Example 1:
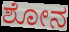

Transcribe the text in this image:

ಶೋನ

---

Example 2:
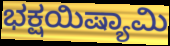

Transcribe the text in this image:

ಭಕ್ಷಯಿಷ್ಯಾಮಿ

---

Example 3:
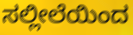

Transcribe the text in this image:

ಸಲ್ಲೀಲೆಯಿಂದ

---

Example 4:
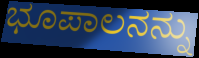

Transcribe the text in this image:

ಭೂಪಾಲನನ್ನು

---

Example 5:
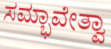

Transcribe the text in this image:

ಸಮ್ಭಾವೇತ್ವಾ